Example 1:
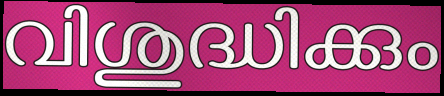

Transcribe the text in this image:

വിശുദ്ധിക്കും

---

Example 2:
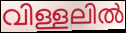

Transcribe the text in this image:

വിള്ളലിൽ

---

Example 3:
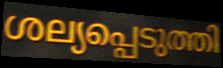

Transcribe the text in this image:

ശല്യപ്പെടുത്തി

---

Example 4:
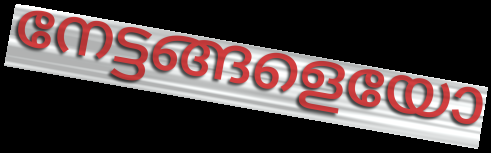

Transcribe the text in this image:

നേട്ടങ്ങളെയോ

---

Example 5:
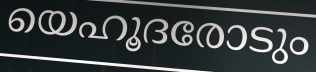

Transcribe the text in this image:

യെഹൂദരോടും